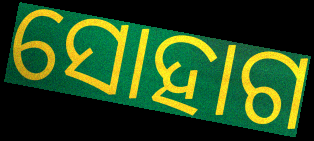
ସୋହାଗ